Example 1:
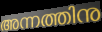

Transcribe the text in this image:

അന്നത്തിനു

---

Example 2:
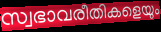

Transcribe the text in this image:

സ്വഭാവരീതികളെയും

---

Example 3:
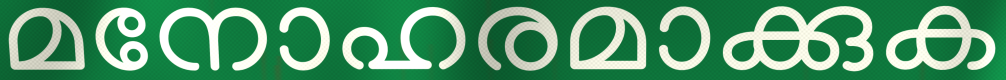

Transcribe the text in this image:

മനോഹരമാക്കുക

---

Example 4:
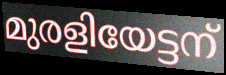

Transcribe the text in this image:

മുരളിയേട്ടന്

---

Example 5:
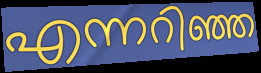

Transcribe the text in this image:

എന്നറിഞ്ഞ